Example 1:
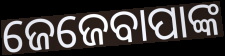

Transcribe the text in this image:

ଜେଜେବାପାଙ୍କ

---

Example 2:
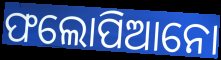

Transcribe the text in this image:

ଫଲୋପିଆନୋ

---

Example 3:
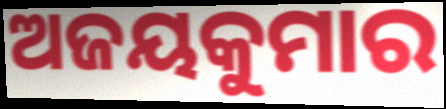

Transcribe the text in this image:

ଅଜୟକୁମାର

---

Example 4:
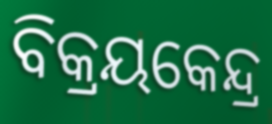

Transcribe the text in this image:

ବିକ୍ରୟକେନ୍ଦ୍ର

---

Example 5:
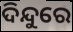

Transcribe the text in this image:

ଦିନ୍ଦୁରେ